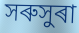
সৰুসুৰা